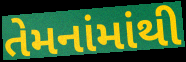
તેમનાંમાંથી